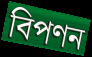
বিপণন